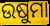
ଉଷୁମା